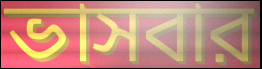
ভাসবার